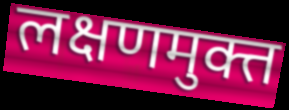
लक्षणमुक्त